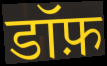
डॉफ़